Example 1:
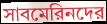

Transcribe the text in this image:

সাবমেরিনদের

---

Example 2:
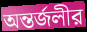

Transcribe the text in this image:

অন্তর্জলীর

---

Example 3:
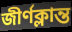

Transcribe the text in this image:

জীর্ণক্লান্ত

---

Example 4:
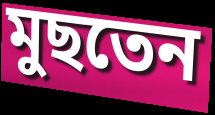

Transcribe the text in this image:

মুছতেন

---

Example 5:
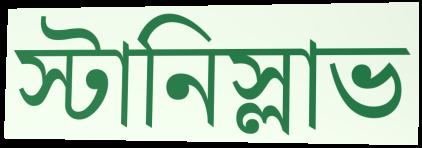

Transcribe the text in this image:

স্টানিস্লাভ